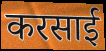
करसाई